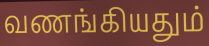
வணங்கியதும்